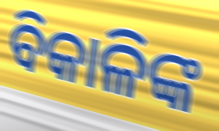
ବିକାଳିଙ୍କ